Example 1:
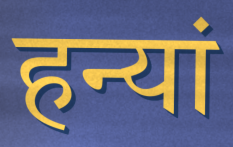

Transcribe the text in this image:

हन्यां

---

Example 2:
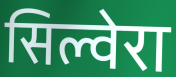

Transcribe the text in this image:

सिल्वेरा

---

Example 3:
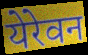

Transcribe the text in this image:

येरेवन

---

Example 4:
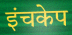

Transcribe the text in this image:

इंचकेप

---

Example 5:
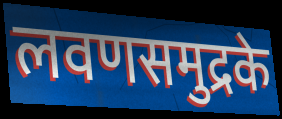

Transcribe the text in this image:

लवणसमुद्रके